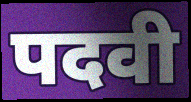
पदवी